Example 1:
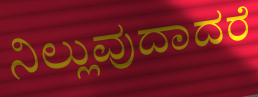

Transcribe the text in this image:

ನಿಲ್ಲುವುದಾದರೆ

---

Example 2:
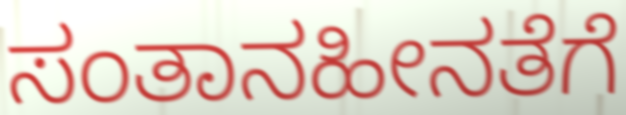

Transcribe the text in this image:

ಸಂತಾನಹೀನತೆಗೆ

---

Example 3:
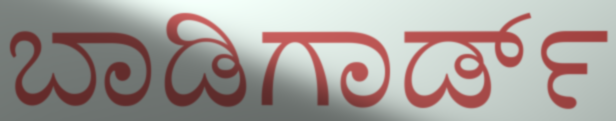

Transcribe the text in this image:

ಬಾಡಿಗಾರ್ಡ್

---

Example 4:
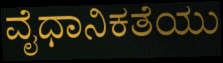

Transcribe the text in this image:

ವೈಧಾನಿಕತೆಯು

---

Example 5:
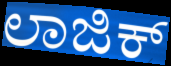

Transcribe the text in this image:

ಲಾಜಿಕ್